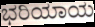
ಭರಿಯಾಯ